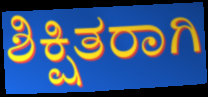
ಶಿಕ್ಷಿತರಾಗಿ